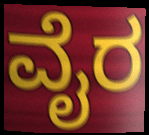
ವೈರ